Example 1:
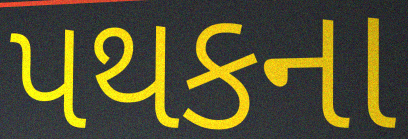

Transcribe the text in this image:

પથકના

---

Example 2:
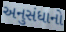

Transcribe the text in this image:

અનુસંધાનો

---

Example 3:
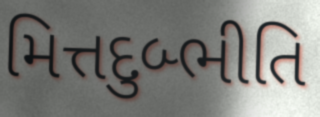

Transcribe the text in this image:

મિત્તદુબ્ભીતિ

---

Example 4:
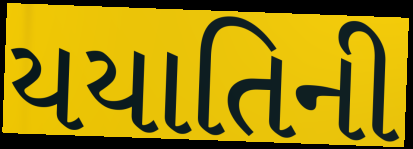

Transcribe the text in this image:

યયાતિની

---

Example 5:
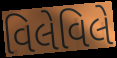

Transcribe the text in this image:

વિલેવિલે